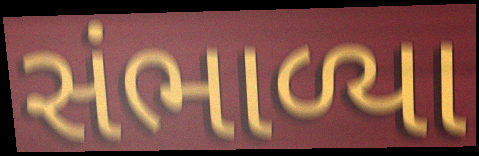
સંભાળ્યા